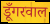
डूँगरवाल